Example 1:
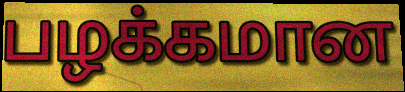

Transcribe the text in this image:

பழக்கமான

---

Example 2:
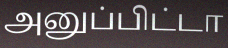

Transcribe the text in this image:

அனுப்பிட்டா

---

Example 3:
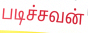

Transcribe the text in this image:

படிச்சவன்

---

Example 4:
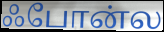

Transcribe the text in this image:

ஃபோன்ல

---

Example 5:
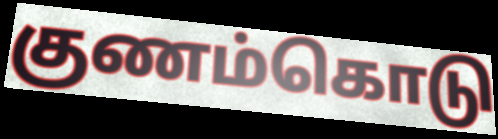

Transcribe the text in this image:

குணம்கொடு